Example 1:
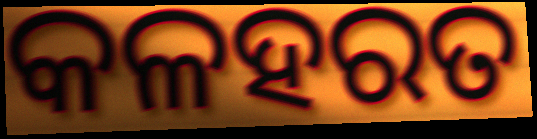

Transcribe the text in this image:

କଳହରତ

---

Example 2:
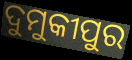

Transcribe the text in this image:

ଦୁମୁକୀପୁର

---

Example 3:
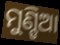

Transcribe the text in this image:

ମୁଣ୍ଡିଆ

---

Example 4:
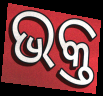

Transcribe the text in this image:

ଭକ୍ତ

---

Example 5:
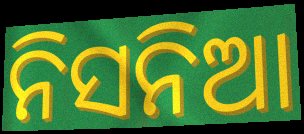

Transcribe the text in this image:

ନିସନିଆ